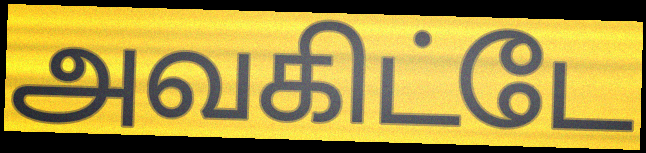
அவகிட்டே